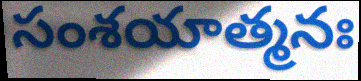
సంశయాత్మనః